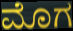
ಮೊಗ